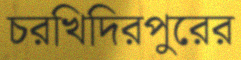
চরখিদিরপুরের